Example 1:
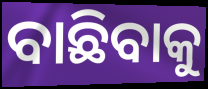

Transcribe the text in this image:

ବାଛିବାକୁ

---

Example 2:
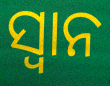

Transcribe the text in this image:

ସ୍ୱାନ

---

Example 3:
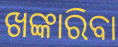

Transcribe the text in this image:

ଖଙ୍କାରିବା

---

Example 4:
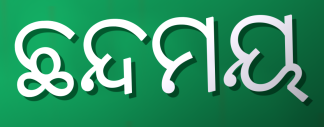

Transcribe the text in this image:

ଛନ୍ଦମୟ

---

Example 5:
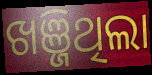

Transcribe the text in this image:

ଖଞ୍ଜିଥିଲା